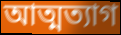
আত্মত্যাগ